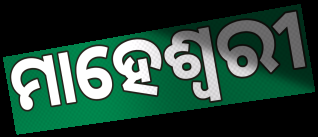
ମାହେଶ୍ଵରୀ